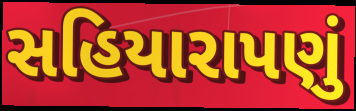
સહિયારાપણું